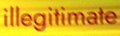
illegitimate